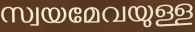
സ്വയമേവയുള്ള